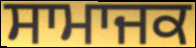
ਸਾਮਾਜਕ